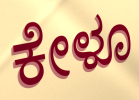
ಕೇಳೂ